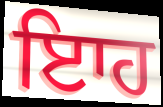
ਇਾਹ